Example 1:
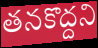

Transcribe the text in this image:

తనకొద్దని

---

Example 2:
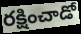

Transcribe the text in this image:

రక్షించాడో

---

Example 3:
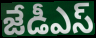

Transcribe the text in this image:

జేడీఎస్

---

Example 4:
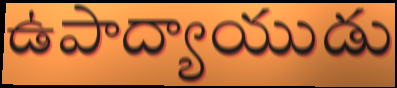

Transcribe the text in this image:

ఉపాద్యాయుడు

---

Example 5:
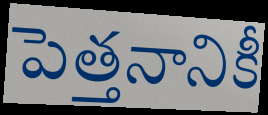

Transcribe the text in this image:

పెత్తనానికీ